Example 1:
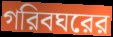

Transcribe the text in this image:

গরিবঘরের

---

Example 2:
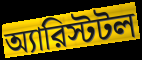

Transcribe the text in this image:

অ্যারিস্টটল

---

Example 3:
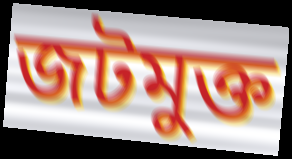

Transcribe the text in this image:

জটমুক্ত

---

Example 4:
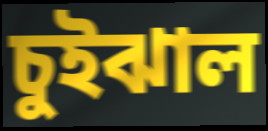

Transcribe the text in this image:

চুইঝাল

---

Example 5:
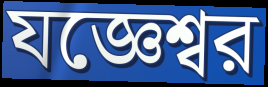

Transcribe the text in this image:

যজ্ঞেশ্বর